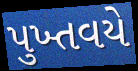
પુખ્તવયે